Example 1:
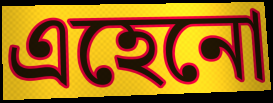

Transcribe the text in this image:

এহেনো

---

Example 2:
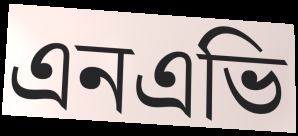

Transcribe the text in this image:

এনএভি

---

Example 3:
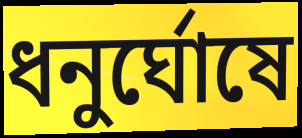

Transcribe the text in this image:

ধনুর্ঘোষে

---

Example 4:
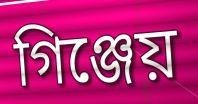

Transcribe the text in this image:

গিঞ্জেয়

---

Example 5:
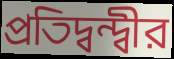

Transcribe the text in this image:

প্রতিদ্বন্দ্বীর